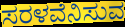
ಸರಳವೆನಿಸುವ